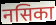
नसिका